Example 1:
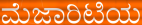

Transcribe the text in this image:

ಮೆಜಾರಿಟಿಯ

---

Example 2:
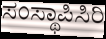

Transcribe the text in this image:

ಸಂಸ್ಥಾಪಿಸಿರಿ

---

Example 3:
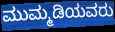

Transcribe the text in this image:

ಮುಮ್ಮಡಿಯವರು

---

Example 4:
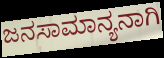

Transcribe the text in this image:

ಜನಸಾಮಾನ್ಯನಾಗಿ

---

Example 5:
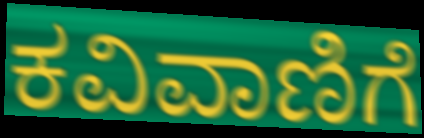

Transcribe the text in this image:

ಕವಿವಾಣಿಗೆ